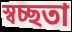
স্বচ্ছতা